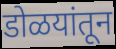
डोळयांतून